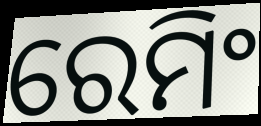
ରେମିଂ